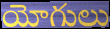
యోగులు